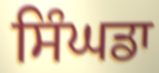
ਸਿੰਘਡਾ